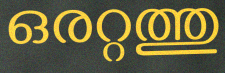
ഒരറ്റത്തു